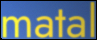
matal